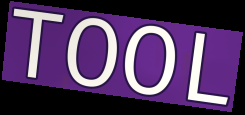
TOOL